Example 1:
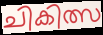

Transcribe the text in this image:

ചികിത്സ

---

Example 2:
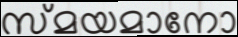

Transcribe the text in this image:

സ്മയമാനോ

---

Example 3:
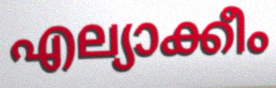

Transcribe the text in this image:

എല്യാക്കീം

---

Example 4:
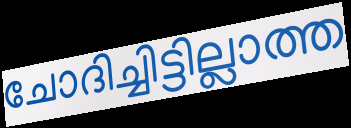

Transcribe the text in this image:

ചോദിച്ചിട്ടില്ലാത്ത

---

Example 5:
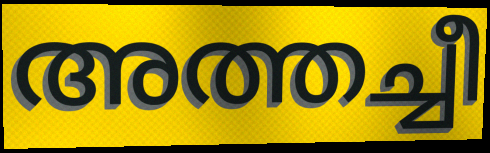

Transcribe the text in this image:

അത്തച്ചീ